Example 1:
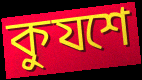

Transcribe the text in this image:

কুযশে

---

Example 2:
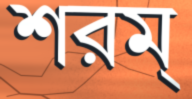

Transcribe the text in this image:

শরম্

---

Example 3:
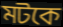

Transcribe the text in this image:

মটকে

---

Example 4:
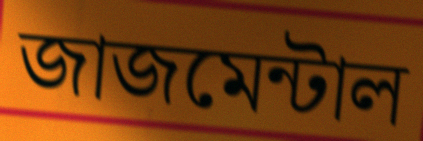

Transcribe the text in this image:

জাজমেন্টাল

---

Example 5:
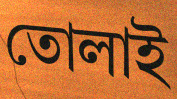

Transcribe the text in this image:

তোলাই